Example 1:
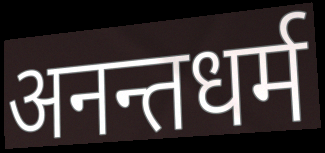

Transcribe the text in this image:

अनन्तधर्म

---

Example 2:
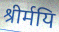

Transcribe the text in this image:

श्रीर्मयि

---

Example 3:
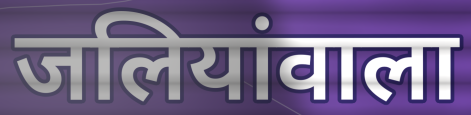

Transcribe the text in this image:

जलियांवाला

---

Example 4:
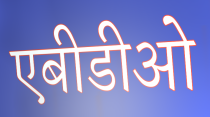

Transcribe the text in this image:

एबीडीओ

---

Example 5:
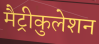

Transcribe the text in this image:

मैट्रीकुलेशन